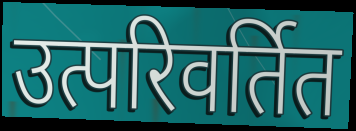
उत्परिवर्तित